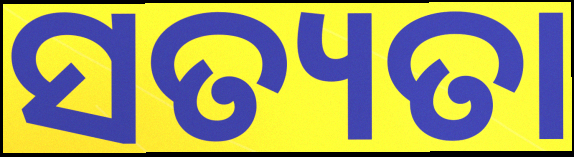
ସତ୍ୟତା